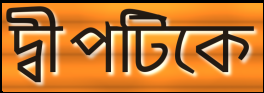
দ্বীপটিকে